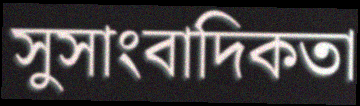
সুসাংবাদিকতা